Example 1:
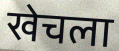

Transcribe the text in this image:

खेचला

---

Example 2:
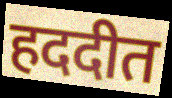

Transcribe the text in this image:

हददीत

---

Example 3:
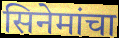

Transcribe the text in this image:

सिनेमांचा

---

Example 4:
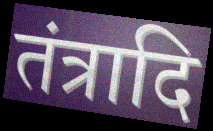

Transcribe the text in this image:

तंत्रादि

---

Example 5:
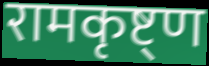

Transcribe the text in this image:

रामकृष्ट्ण